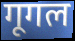
गूगल